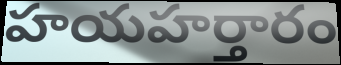
హయహర్తారం